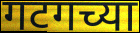
गटगच्या